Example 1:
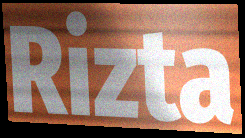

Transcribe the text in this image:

Rizta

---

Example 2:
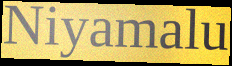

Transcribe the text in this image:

Niyamalu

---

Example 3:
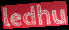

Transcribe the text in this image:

ledhu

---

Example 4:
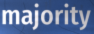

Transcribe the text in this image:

majority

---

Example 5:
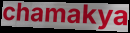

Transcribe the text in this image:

chamakya